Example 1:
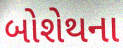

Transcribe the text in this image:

બોશેથના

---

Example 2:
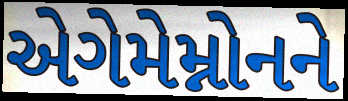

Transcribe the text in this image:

એગેમેમ્નોનને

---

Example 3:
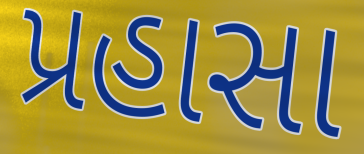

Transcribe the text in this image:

પ્રહાસા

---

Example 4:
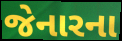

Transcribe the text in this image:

જેનારના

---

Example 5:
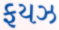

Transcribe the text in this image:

ફયઝ